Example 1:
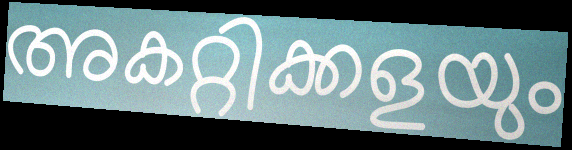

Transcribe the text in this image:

അകറ്റിക്കളയും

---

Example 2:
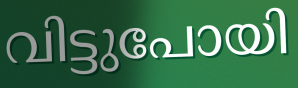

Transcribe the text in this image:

വിട്ടുപോയി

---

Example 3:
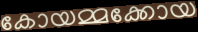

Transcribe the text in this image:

കോയമ്മക്കോയ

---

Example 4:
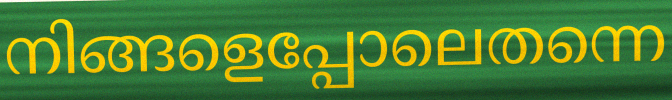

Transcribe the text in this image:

നിങ്ങളെപ്പോലെതന്നെ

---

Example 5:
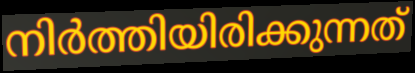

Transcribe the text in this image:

നിർത്തിയിരിക്കുന്നത്